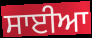
ਸਾਈਆ